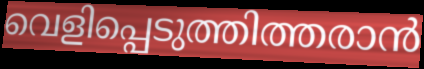
വെളിപ്പെടുത്തിത്തരാൻ